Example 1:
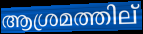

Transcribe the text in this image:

ആശ്രമത്തില്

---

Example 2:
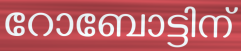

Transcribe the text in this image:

റോബോട്ടിന്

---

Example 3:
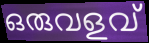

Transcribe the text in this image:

ഒരുവളവ്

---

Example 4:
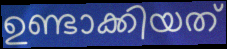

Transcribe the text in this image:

ഉണ്ടാക്കിയത്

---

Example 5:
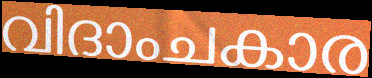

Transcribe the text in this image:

വിദാംചകാര